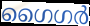
ഗൈഗർ